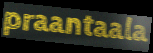
praantaala